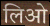
लिओ